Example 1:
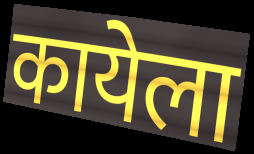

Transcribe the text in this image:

कायेला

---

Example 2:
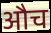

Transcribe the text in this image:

औच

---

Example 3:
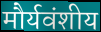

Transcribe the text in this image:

मौर्यवंशीय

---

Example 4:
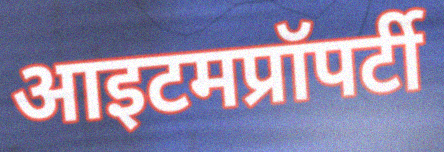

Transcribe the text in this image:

आइटमप्रॉपर्टी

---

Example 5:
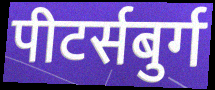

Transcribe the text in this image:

पीटर्सबुर्ग